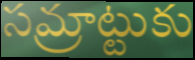
సమ్రాట్టుకు